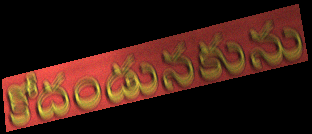
కోదండునకును